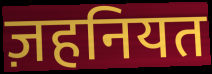
ज़हनियत